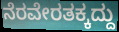
ನೆರವೇರತಕ್ಕದ್ದು